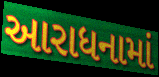
આરાધનામાં